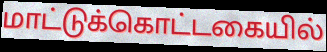
மாட்டுக்கொட்டகையில்